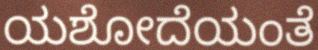
ಯಶೋದೆಯಂತೆ